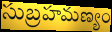
సుబ్రహమణ్యం